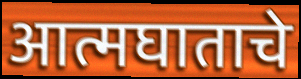
आत्मघाताचे